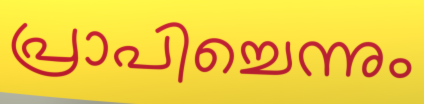
പ്രാപിച്ചെന്നും